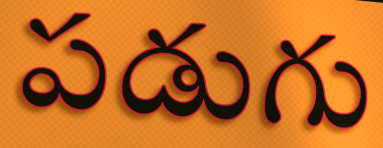
పడుగు